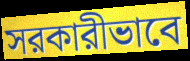
সরকারীভাবে